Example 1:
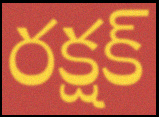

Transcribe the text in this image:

రక్షక్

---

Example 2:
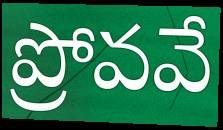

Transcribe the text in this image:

ప్రోవవే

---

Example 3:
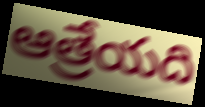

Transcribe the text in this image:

ఆత్రేయది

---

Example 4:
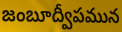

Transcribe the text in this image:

జంబూద్వీపమున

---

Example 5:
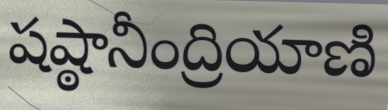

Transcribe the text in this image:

షష్ఠానీంద్రియాణి